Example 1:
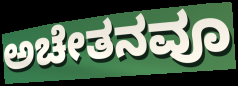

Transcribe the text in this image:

ಅಚೇತನವೂ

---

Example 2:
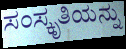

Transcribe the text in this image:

ಸಂಸ್ಕೃತಿಯನ್ನು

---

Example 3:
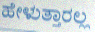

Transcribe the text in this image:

ಹೇಳುತ್ತಾರಲ್ಲ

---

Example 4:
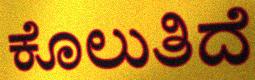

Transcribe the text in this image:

ಕೊಲುತಿದೆ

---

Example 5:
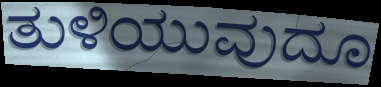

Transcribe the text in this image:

ತುಳಿಯುವುದೂ